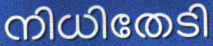
നിധിതേടി